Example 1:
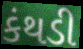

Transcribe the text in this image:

કંથડી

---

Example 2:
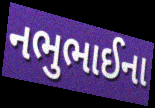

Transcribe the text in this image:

નભુભાઈના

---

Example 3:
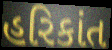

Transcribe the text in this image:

હરિકાંત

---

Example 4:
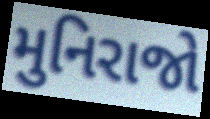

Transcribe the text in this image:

મુનિરાજો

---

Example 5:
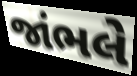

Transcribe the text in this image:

જાંભલે